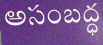
అసంబద్ధ